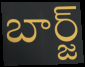
బార్జ్